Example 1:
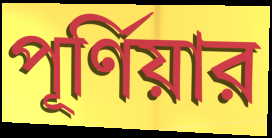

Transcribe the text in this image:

পূর্ণিয়ার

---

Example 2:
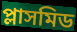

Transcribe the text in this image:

প্লাসমিড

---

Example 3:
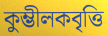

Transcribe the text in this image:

কুম্ভীলকবৃত্তি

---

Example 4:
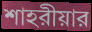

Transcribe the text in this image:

শাহরীয়ার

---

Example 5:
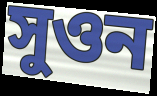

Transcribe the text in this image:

সুওন